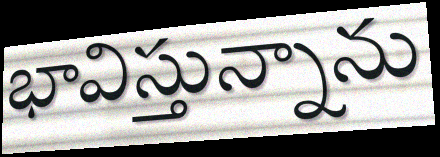
భావిస్తున్నాను